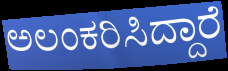
ಅಲಂಕರಿಸಿದ್ದಾರೆ